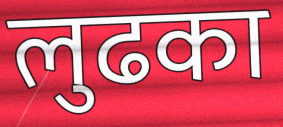
लुढका